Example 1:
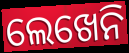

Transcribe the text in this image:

ଲେଖେନି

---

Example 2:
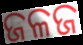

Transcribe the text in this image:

ଜଳଜ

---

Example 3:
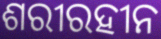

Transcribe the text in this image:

ଶରୀରହୀନ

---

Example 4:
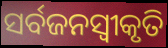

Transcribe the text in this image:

ସର୍ବଜନସ୍ୱୀକୃତି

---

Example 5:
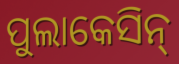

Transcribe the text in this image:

ପୁଲାକେସିନ୍